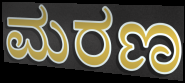
ಮರಣ